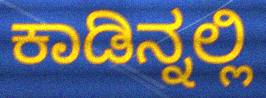
ಕಾಡಿನ್ನಲ್ಲಿ